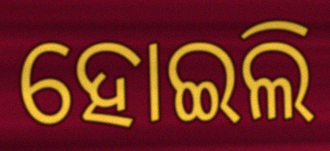
ହୋଇଲି